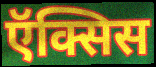
ऍक्सिस